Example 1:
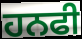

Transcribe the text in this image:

ਹਨਫੀ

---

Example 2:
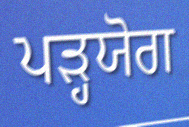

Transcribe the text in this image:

ਪੜ੍ਹਯੋਗ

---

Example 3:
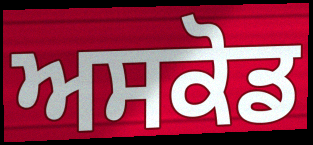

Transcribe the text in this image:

ਅਸਕੋਡ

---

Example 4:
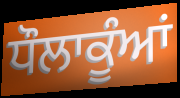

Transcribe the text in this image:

ਧੌਲਾਕੂੰਆਂ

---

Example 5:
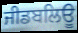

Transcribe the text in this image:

ਜੀਡਬਲਿਊ